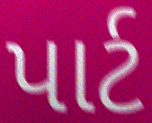
પાર્ટ